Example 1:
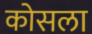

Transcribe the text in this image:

कोसला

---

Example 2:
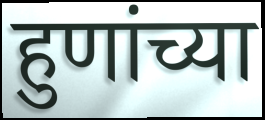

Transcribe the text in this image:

हुणांच्या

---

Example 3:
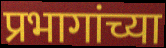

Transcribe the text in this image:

प्रभागांच्या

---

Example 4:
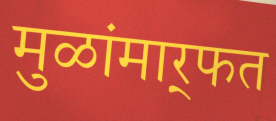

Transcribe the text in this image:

मुळांमार्फत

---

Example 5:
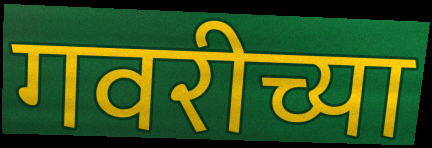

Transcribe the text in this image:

गवरीच्या